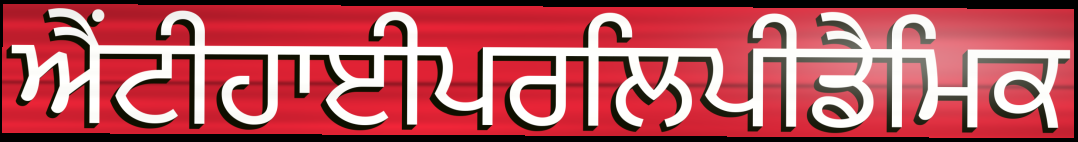
ਐਂਟੀਹਾਈਪਰਲਿਪੀਡੈਮਿਕ